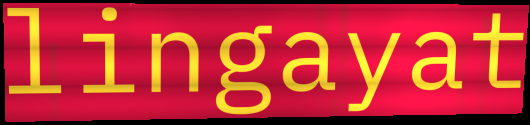
lingayat